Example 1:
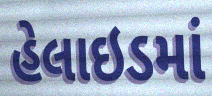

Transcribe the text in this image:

હેલાઇડમાં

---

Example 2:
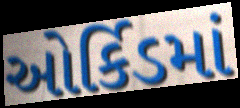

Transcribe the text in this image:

ઓર્કિડમાં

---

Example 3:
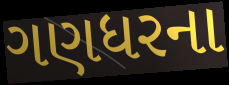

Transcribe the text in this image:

ગણધરના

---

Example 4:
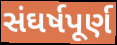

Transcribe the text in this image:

સંઘર્ષપૂર્ણ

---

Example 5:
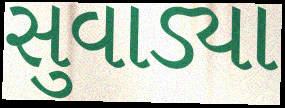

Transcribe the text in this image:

સુવાડ્યા